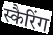
स्कैरिंग